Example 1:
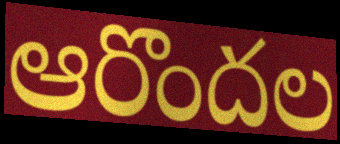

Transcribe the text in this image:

ఆరొందల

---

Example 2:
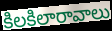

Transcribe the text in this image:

కిలకిలారావాలు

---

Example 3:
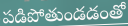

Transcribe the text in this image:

పడిపోతుండడంతో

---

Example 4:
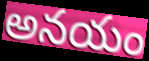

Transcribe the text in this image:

అనయం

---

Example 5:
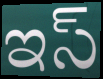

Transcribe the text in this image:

ఇస్